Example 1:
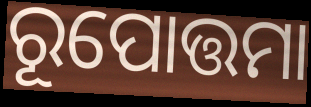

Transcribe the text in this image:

ରୂପୋତ୍ତମା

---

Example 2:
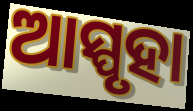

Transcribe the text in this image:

ଆସ୍ପୃହା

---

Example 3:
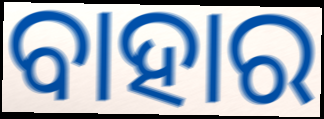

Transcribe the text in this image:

ବାହାର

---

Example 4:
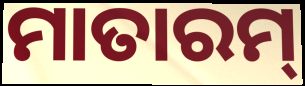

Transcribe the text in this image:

ମାତାରମ୍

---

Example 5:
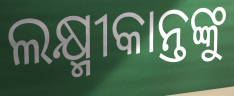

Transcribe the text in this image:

ଲକ୍ଷ୍ମୀକାନ୍ତଙ୍କୁ